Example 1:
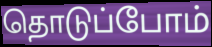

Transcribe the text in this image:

தொடுப்போம்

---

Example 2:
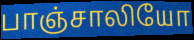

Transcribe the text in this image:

பாஞ்சாலியோ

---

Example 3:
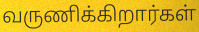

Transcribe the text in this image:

வருணிக்கிறார்கள்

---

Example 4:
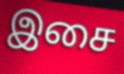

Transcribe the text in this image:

இசை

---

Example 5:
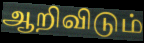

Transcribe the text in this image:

ஆறிவிடும்